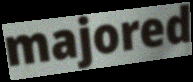
majored